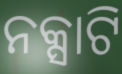
ନକ୍ସାଟି